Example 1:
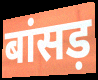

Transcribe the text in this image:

बांसड़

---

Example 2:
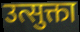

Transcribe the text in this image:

उत्सुक्ता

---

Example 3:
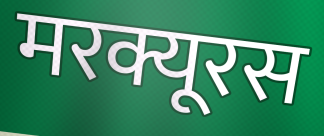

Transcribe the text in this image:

मरक्यूरस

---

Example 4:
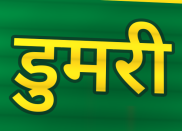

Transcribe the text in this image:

डुमरी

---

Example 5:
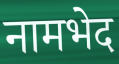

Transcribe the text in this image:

नामभेद